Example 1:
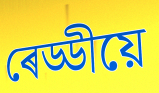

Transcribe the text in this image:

ৰেড্ডীয়ে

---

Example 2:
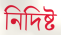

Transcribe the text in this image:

নিদিষ্ট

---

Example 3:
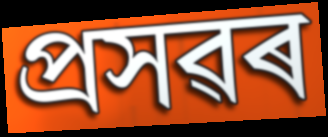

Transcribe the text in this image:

প্ৰসৱৰ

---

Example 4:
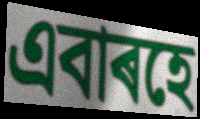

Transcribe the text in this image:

এবাৰহে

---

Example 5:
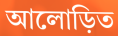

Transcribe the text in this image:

আলোড়িত